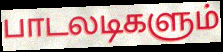
பாடலடிகளும்